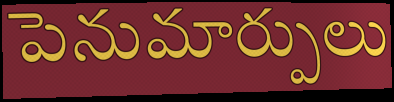
పెనుమార్పులు